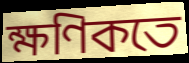
ক্ষণিকতে